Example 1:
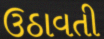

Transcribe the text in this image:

ઉઠાવતી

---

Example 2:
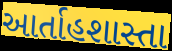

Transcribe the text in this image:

આર્તાહશાસ્તા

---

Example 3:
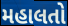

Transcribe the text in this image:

મહાલતો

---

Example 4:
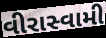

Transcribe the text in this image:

વીરાસ્વામી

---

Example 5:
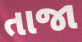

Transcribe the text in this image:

તાજા